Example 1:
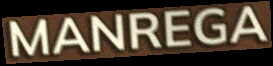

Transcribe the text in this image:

MANREGA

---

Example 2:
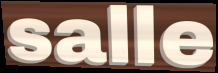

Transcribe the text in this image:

salle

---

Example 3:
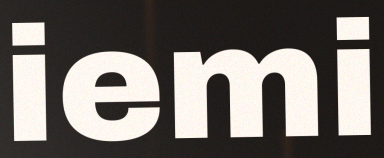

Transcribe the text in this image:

iemi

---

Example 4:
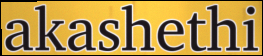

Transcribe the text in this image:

akashethi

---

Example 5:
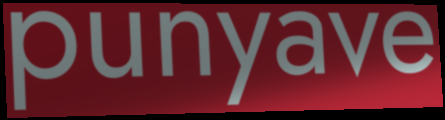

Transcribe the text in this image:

punyave